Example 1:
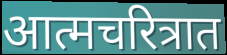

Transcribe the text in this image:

आत्मचरित्रात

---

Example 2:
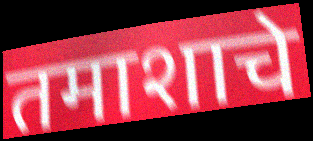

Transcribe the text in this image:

तमाशाचे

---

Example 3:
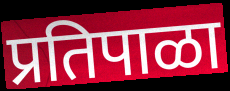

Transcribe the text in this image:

प्रतिपाळा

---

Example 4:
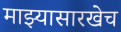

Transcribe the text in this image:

माझ्यासारखेच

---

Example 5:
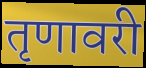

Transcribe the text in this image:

तृणावरी